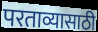
परताव्यासाठी